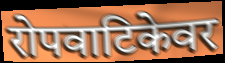
रोपवाटिकेवर